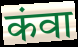
कंवा